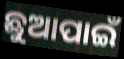
ଛୁଆପାଇଁ